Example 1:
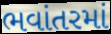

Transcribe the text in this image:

ભવાંતરમાં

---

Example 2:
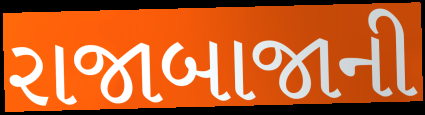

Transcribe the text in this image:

રાજાબાજાની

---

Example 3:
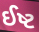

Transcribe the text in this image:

ઈષ્ટ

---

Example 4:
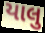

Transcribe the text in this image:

યાલુ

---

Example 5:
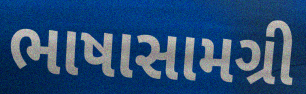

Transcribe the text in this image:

ભાષાસામગ્રી